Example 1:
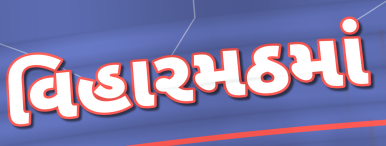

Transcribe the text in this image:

વિહારમઠમાં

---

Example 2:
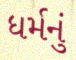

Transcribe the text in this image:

ધર્મનું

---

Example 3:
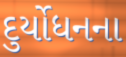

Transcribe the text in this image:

દુર્યોધનના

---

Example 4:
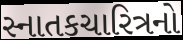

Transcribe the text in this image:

સ્નાતકચારિત્રનો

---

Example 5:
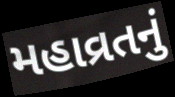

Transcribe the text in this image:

મહાવ્રતનું